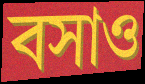
বসাও